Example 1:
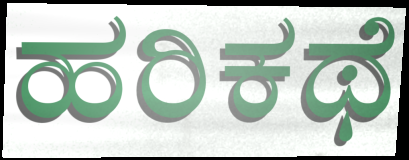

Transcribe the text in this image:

ಹರಿಕಥೆ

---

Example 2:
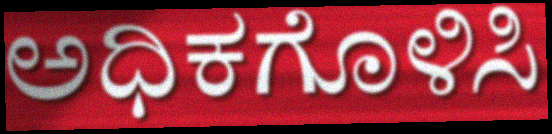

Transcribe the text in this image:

ಅಧಿಕಗೊಳಿಸಿ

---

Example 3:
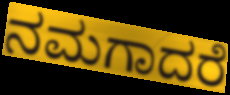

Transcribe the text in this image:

ನಮಗಾದರೆ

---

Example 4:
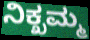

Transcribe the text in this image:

ನಿಕ್ಖಮ್ಮ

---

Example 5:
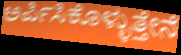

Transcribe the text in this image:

ಅರ್ಪಿಸಿಕೊಳ್ಳುತ್ತೇನೆ